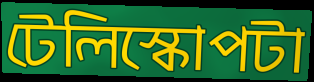
টেলিস্কোপটা